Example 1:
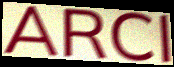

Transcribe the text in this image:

ARCI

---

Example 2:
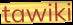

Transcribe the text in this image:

tawiki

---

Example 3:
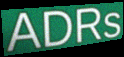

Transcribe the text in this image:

ADRs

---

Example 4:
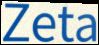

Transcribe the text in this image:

Zeta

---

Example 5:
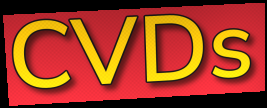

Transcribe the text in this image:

CVDs